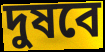
দুষবে